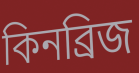
কিনব্রিজ